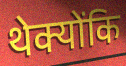
थेक्योंकि